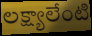
లక్ష్యాలేంటి